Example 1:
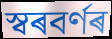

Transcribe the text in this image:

স্বৰবৰ্ণৰ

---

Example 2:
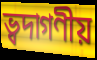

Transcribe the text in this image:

ভ্বদাগণীয়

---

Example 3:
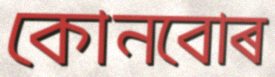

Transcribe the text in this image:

কোনবোৰ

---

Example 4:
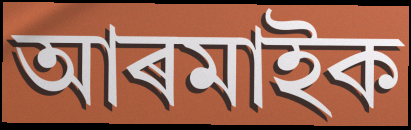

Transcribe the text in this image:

আৰমাইক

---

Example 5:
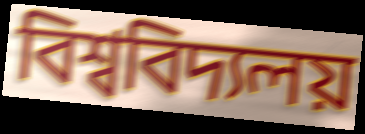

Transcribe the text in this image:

বিশ্ববিদ্যলয়